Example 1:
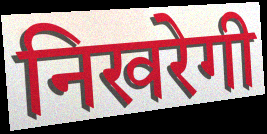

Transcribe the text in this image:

निखरेगी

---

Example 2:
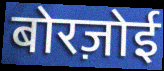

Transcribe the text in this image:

बोरज़ोई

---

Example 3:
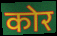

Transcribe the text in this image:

कोर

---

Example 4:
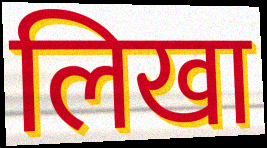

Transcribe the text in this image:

लिखा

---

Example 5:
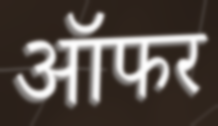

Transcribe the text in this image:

ऑफर